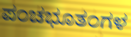
ಪಂಚಭೂತಂಗಳ